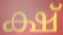
ക്ഷ്